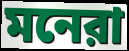
মনেরা